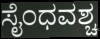
ಸೈಂಧವಶ್ಚ